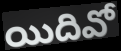
యిదివో